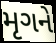
મૃગને